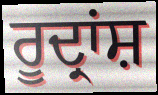
ਰੂਦ੍ਰਾਂਸ਼